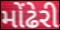
મોંઢેરી